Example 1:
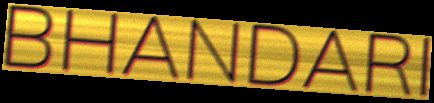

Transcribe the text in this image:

BHANDARI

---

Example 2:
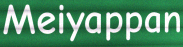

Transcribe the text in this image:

Meiyappan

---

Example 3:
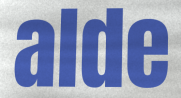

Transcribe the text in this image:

alde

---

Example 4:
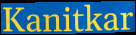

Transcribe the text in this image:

Kanitkar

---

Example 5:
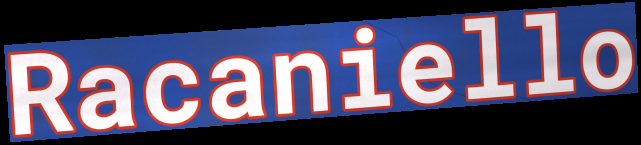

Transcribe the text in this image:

Racaniello